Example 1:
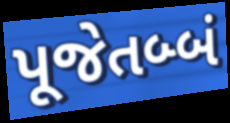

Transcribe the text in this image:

પૂજેતબ્બં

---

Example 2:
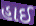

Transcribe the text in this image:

હાઈ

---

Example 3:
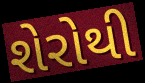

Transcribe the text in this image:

શેરોથી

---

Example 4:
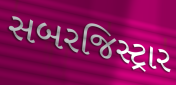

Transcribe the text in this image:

સબરજિસ્ટ્રાર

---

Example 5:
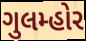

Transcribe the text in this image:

ગુલમ્હોર